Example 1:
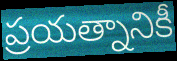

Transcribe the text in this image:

ప్రయత్నానికీ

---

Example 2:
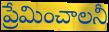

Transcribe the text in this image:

ప్రేమించాలనీ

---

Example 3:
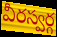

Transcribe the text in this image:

వీరస్వర్గ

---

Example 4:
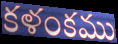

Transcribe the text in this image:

కళంకము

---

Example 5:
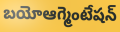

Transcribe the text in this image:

బయోఆగ్మెంటేషన్